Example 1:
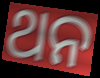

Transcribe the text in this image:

ଥନ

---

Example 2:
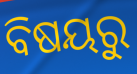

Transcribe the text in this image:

ବିଷୟରୁ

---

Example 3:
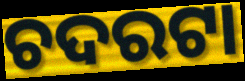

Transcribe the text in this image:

ଚଦରଟା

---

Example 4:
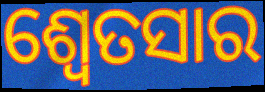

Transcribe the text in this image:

ଶ୍ଵେତସାର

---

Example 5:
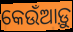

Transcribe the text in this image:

କେଉଁଆଡ଼ୁ